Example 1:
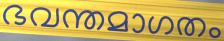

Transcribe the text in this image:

ഭവന്തമാഗതം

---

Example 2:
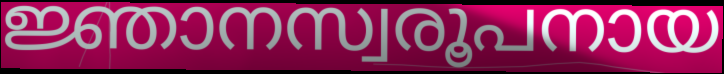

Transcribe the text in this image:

ജ്ഞാനസ്വരൂപനായ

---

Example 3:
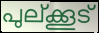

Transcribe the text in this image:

പുല്ക്കൂട്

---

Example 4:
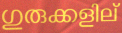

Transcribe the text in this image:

ഗുരുക്കളില്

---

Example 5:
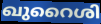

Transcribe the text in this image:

ഖുറൈശി